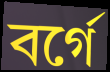
বর্গে